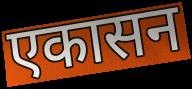
एकासन